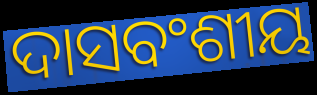
ଦାସବଂଶୀୟ